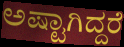
ಅಷ್ಟಾಗಿದ್ದರೆ